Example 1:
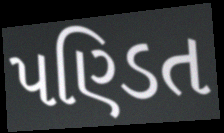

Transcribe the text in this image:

પણ્ડિત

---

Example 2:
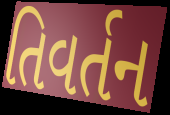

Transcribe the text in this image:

તિવર્તન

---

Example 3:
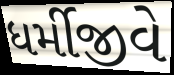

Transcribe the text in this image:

ધર્મીજીવે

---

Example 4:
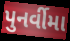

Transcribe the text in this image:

પુનર્વીમા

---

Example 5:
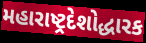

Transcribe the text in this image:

મહારાષ્ટ્રદેશોદ્ધારક